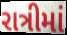
રાત્રીમાં